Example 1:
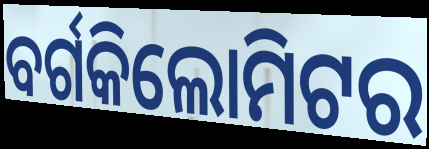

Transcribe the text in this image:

ବର୍ଗକିଲୋମିଟର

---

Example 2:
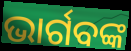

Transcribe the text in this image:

ଭାର୍ଗବଙ୍କ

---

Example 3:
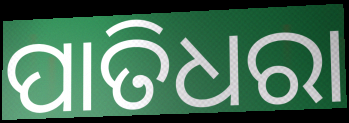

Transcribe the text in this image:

ପାତିଧରା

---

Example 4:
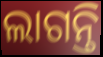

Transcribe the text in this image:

ଲାଗନ୍ତି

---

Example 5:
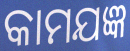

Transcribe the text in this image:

କାମଯଜ୍ଞ